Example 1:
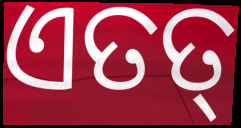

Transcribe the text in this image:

ଏତତ୍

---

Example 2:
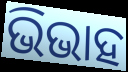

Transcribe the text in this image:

ଭିଭାହ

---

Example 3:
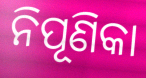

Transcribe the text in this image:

ନିପୂଣିକା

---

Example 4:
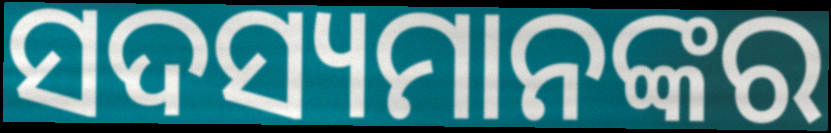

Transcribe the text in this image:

ସଦସ୍ୟମାନଙ୍କର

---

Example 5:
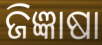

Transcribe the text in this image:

ଜିଜ୍ଞାଷା